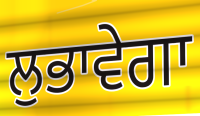
ਲੁਭਾਵੇਗਾ